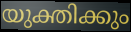
യുക്തിക്കും